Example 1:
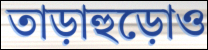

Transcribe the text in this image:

তাড়াহুড়োও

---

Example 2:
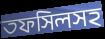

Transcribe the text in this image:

তফসিলসহ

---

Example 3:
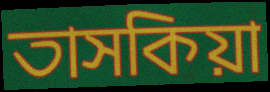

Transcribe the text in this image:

তাসকিয়া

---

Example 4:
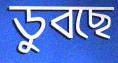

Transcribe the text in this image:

ডুবছে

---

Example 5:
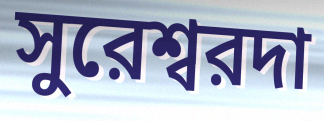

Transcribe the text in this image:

সুরেশ্বরদা